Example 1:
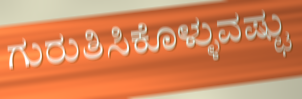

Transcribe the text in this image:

ಗುರುತಿಸಿಕೊಳ್ಳುವಷ್ಟು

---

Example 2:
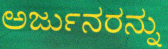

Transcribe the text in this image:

ಅರ್ಜುನರನ್ನು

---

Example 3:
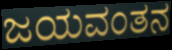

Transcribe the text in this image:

ಜಯವಂತನ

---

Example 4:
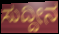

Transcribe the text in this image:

ಸುದ್ದೀನ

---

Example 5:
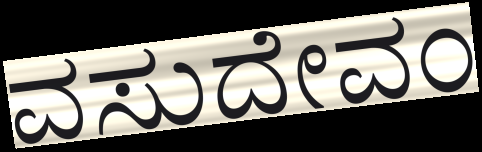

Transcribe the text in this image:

ವಸುದೇವಂ